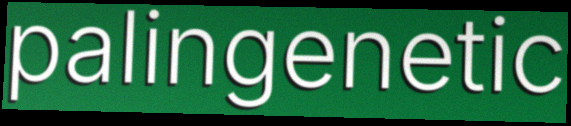
palingenetic